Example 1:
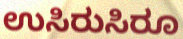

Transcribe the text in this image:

ಉಸಿರುಸಿರೂ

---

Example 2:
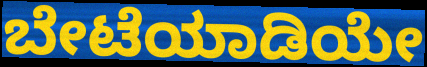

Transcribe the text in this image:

ಬೇಟೆಯಾಡಿಯೇ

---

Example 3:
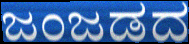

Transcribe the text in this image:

ಜಂಜಡದ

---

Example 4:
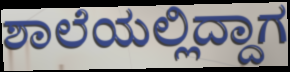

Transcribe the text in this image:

ಶಾಲೆಯಲ್ಲಿದ್ದಾಗ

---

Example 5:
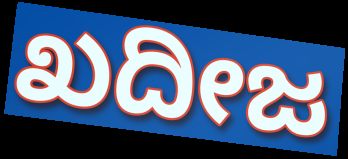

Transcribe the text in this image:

ಖದೀಜ